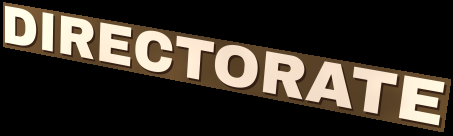
DIRECTORATE